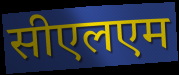
सीएलएम